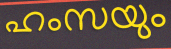
ഹംസയും